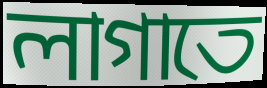
লাগাতে